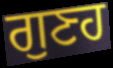
ਗੁਣਹ